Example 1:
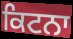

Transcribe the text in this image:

ਕਿਟਨਾ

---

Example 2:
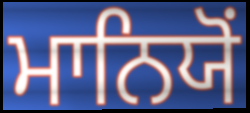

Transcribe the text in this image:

ਮਾਨਿਯੋਂ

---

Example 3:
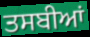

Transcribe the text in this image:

ਤਸਬੀਆਂ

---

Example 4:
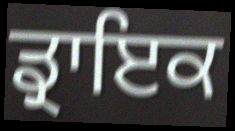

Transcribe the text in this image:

ਡ੍ਰਾਇਕ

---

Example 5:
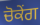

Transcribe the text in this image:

ਚੋਕੇਂਗ